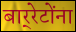
बार्रेटोंना